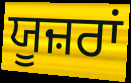
ਯੂਜ਼ਰਾਂ